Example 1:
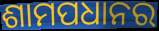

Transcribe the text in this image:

ଶାମପଧାନର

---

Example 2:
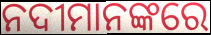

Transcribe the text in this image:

ନଦୀମାନଙ୍କରେ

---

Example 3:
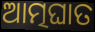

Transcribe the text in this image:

ଆତ୍ମଘାତ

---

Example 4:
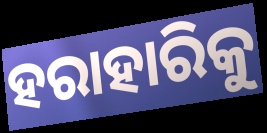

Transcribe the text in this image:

ହରାହାରିକୁ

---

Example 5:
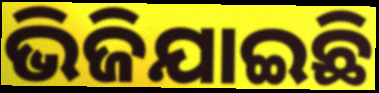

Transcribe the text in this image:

ଭିଜିଯାଇଛି